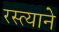
रस्त्याने